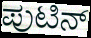
ಪುಟಿನ್